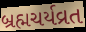
બ્રહ્મચર્યવ્રત